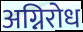
अग्निरोध